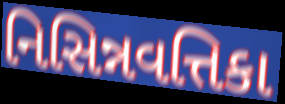
નિસિન્નવત્તિકા